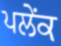
ਪਲੇਂਕ